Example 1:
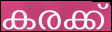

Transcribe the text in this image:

കരക്ക്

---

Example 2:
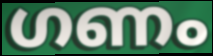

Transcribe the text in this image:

ഗണം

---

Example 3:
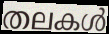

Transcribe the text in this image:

തലകൾ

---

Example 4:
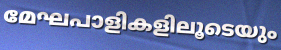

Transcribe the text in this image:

മേഘപാളികളിലൂടെയും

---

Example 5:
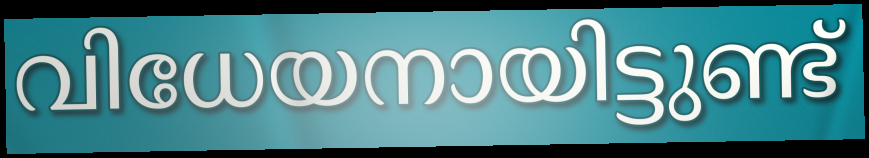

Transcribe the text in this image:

വിധേയനായിട്ടുണ്ട്